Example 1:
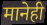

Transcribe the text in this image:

मानेही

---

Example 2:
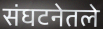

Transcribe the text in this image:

संघटनेतले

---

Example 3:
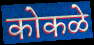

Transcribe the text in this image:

कोकळे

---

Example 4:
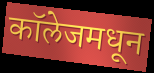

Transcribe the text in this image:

कॉलेजमधून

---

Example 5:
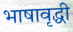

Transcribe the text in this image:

भाषावृद्धी